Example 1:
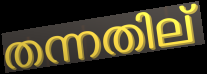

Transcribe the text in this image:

തന്നതില്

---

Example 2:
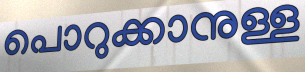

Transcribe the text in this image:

പൊറുക്കാനുള്ള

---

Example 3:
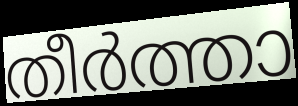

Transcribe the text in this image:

തീർത്താ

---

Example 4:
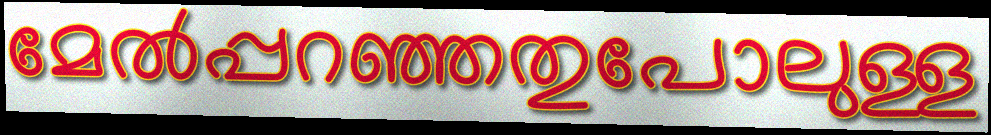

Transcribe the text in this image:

മേൽപ്പറഞ്ഞതുപോലുള്ള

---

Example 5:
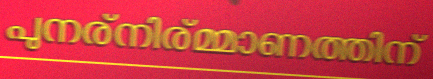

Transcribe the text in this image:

പുനര്നിര്മ്മാണത്തിന്